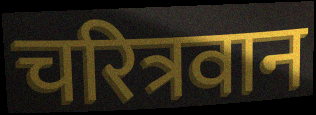
चरित्रवान